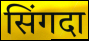
सिंगदा